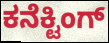
ಕನೆಕ್ಟಿಂಗ್